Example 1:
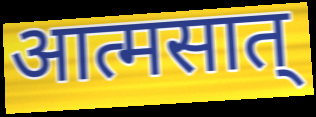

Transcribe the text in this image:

आत्मसात्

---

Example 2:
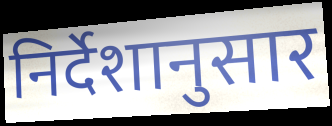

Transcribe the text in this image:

निर्देशानुसार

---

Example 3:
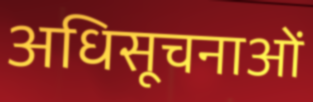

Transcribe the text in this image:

अधिसूचनाओं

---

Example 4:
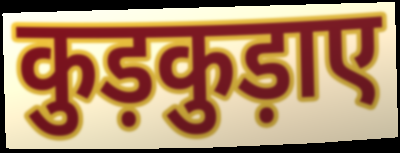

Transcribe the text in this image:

कुड़कुड़ाए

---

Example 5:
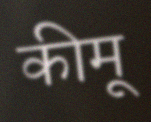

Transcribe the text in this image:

कीमू